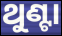
ଥୁଣ୍ଟା